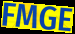
FMGE